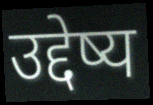
उद्देष्य